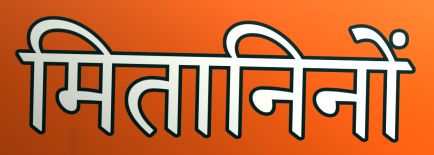
मितानिनों